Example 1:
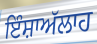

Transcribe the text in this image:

ਇੰਸ਼ਾਅੱਲਾਹ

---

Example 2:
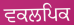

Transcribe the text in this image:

ਵਕਲਪਿਕ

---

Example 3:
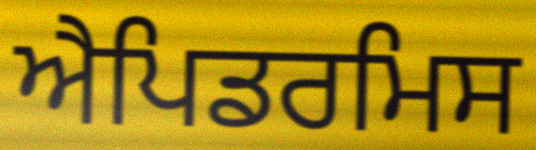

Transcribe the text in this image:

ਐਪਿਡਰਮਿਸ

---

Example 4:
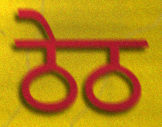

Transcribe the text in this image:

ਠੇਠ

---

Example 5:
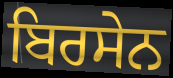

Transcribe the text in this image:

ਬਿਰਸੇਨ